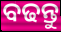
ବଢନ୍ତୁ